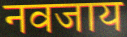
नवजाय